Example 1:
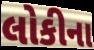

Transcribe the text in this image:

લોકીના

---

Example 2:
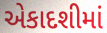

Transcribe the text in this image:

એકાદશીમાં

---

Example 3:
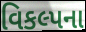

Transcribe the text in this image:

વિકલ્પના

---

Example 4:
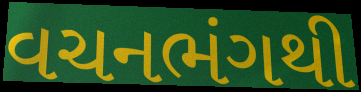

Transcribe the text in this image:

વચનભંગથી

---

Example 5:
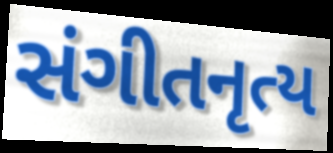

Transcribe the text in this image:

સંગીતનૃત્ય